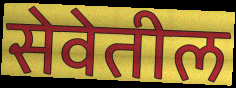
सेवेतील